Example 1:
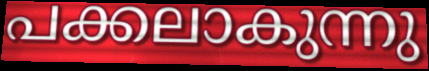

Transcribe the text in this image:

പക്കലാകുന്നു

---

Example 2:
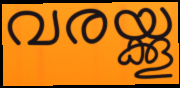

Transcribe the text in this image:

വരയ്ക്കൂ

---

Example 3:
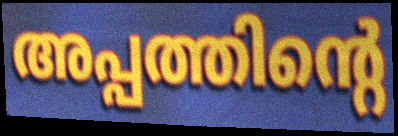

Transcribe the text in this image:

അപ്പത്തിന്റെ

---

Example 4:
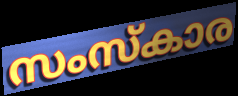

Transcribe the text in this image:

സംസ്കാര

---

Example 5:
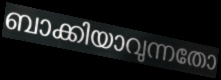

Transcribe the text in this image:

ബാക്കിയാവുന്നതോ